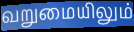
வறுமையிலும்